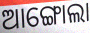
ଆଙ୍ଗୋଲା